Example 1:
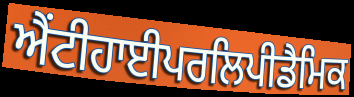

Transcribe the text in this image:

ਐਂਟੀਹਾਈਪਰਲਿਪੀਡੈਮਿਕ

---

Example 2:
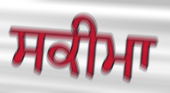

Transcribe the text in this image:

ਸਕੀਮਾ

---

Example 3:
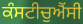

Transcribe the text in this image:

ਕੰਸਟੀਚੁਐਂਸੀ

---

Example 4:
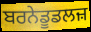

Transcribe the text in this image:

ਬਰਨੇਡੂਡਲਜ਼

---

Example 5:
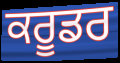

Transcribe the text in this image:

ਕਰੂਡਰ